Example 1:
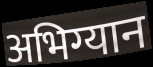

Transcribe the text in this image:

अभिग्यान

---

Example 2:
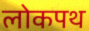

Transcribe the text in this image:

लोकपथ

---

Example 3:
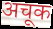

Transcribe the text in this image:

अचूक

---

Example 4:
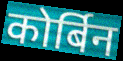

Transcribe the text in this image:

कोर्बिन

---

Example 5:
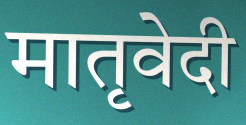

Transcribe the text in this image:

मातृवेदी